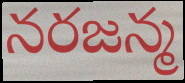
నరజన్మ